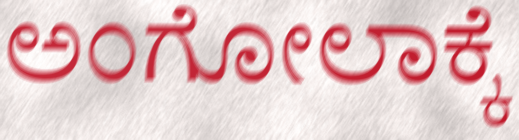
ಅಂಗೋಲಾಕ್ಕೆ